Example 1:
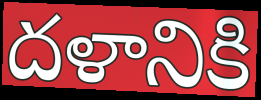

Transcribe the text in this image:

దళానికి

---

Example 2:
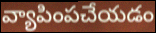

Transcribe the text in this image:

వ్యాపింపచేయడం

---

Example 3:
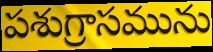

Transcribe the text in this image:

పశుగ్రాసమును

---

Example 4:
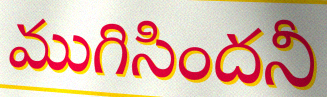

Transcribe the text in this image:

ముగిసిందనీ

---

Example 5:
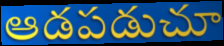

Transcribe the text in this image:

ఆడపడుచూ